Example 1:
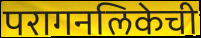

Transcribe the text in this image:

परागनलिकेची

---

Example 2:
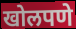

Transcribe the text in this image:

खोलपणे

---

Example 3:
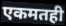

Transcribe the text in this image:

एकमतही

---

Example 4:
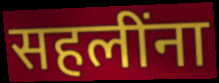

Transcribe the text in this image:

सहलींना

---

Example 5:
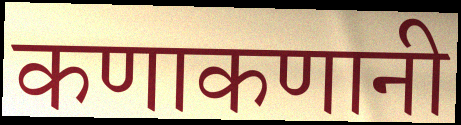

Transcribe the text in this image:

कणाकणानी